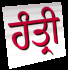
ਹੰਤ੍ਰੀ